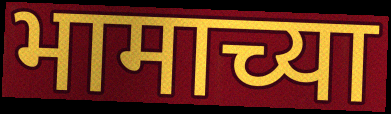
भामाच्या